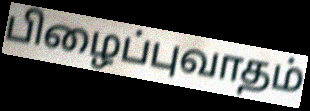
பிழைப்புவாதம்